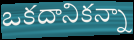
ఒకదానికన్నా